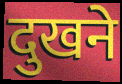
दुखने